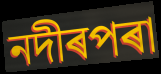
নদীৰপৰা